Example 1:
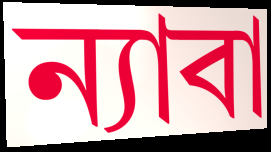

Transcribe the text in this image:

ন্যাবা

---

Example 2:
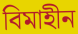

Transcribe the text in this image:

বিমাহীন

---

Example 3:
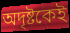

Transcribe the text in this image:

অদৃষ্টকেই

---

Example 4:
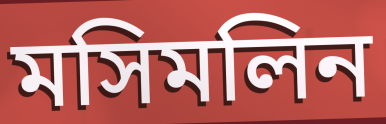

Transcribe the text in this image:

মসিমলিন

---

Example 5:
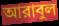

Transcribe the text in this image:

আরাবুল